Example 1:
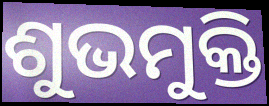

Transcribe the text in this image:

ଶୁଭମୁକ୍ତି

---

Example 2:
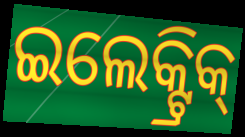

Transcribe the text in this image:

ଇଲେକ୍ଟ୍ରିକ୍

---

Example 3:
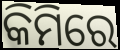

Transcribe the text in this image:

କିମିରେ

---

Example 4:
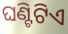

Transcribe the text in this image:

ଘଣ୍ଟିଟିଏ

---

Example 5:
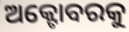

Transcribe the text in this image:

ଅକ୍ଟୋବରକୁ